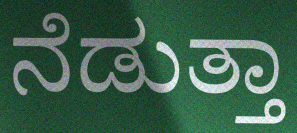
ನೆಡುತ್ತಾ